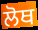
ਲੋਥ